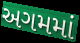
અગમમાં